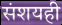
संशयही